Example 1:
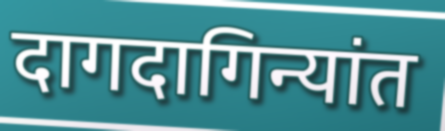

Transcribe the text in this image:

दागदागिन्यांत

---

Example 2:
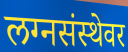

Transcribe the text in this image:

लग्नसंस्थेवर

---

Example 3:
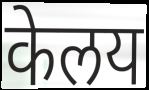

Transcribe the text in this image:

केलय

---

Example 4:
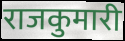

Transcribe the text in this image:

राजकुमारी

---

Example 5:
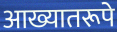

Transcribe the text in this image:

आख्यातरूपे